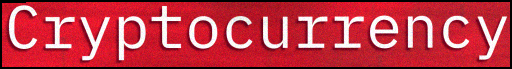
Cryptocurrency